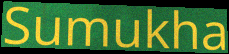
Sumukha